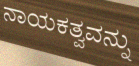
ನಾಯಕತ್ವವನ್ನು